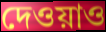
দেওয়াও